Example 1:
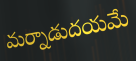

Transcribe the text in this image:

మర్నాడుదయమే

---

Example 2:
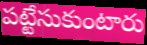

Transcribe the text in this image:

పట్టేసుకుంటారు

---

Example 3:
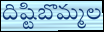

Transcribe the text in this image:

దిష్టిబొమ్మల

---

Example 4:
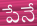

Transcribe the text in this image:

పేనే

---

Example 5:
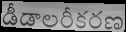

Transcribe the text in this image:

డీడాలరీకరణ